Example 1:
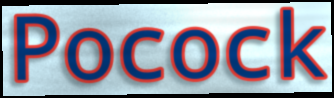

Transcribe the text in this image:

Pocock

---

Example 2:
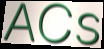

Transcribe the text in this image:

ACs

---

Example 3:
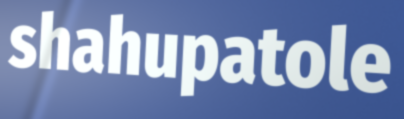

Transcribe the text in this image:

shahupatole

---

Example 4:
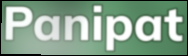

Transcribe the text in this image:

Panipat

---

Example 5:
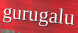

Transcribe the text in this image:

gurugalu